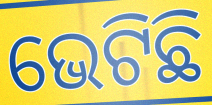
ଭେଟିଛି